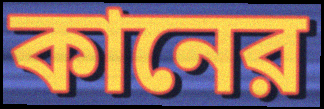
কানের